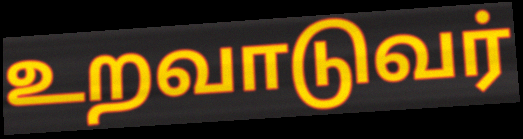
உறவாடுவர்